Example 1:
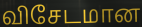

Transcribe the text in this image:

விசேடமான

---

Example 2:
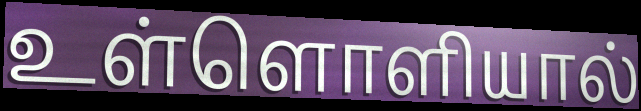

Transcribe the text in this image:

உள்ளொளியால்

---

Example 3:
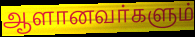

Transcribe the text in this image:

ஆளானவர்களும்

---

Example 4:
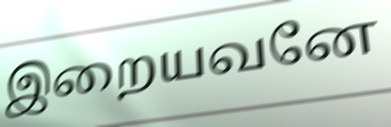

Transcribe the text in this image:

இறையவனே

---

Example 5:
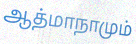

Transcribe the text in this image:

ஆத்மாநாமும்